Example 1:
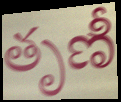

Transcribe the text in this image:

తృణీ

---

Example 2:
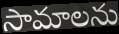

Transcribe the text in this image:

సామాలను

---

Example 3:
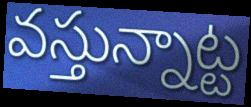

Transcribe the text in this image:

వస్తున్నాట్ట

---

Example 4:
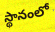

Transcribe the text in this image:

స్థానంలో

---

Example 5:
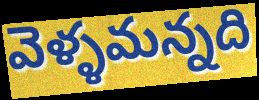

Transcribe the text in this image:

వెళ్ళమన్నది